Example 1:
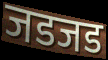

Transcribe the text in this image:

जडजड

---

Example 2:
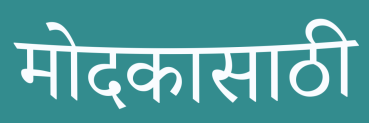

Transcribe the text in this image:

मोदकासाठी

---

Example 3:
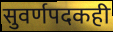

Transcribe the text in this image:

सुवर्णपदकही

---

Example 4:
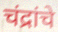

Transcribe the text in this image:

चंद्रांचे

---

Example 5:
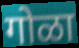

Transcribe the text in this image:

गोळा